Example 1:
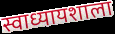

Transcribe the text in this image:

स्वाध्यायशाला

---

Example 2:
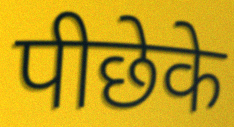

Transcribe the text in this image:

पीछेके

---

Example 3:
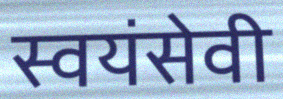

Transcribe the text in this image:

स्वयंसेवी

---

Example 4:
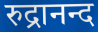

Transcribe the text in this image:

रुद्रानन्द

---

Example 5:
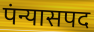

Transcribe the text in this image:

पंन्यासपद